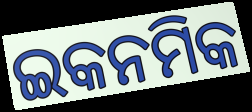
ଇକନମିକ